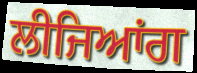
ਲੀਜਿਆਂਗ